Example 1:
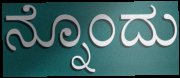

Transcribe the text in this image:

ನ್ನೊಂದು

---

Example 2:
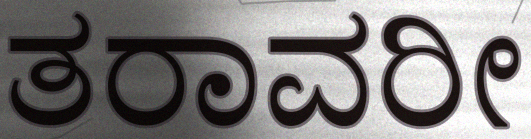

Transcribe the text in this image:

ತರಾವರೀ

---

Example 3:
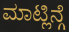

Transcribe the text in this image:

ಮಾಟ್ಲಿನ್ಗೆ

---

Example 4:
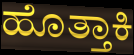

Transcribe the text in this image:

ಹೊತ್ತಾಕಿ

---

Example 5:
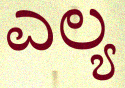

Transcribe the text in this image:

ಎಲ್ಯ